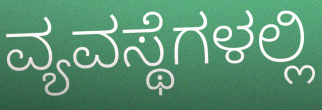
ವ್ಯವಸ್ಥೆಗಳಲ್ಲಿ